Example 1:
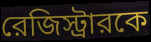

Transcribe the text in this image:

রেজিস্ট্রারকে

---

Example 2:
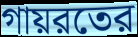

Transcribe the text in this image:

গায়রতের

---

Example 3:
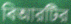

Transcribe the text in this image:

বিআরটির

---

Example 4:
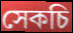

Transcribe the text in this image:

সেকচি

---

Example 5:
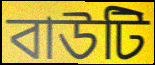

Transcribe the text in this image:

বাউটি